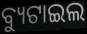
ବ୍ୟୁଟାଇଲ